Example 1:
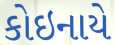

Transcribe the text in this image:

કોઇનાયે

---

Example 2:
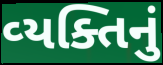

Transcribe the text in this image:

વ્‍યક્તિનું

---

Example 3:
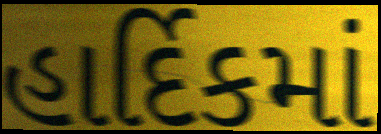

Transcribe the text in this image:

હાર્દિકમાં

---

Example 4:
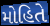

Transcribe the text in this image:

મોહિતે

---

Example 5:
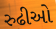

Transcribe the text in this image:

રુઢીઓ